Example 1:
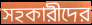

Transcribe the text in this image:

সহকারীদের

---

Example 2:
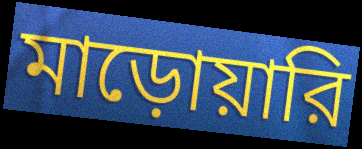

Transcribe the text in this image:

মাড়োয়ারি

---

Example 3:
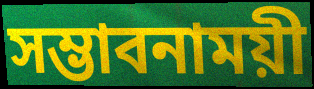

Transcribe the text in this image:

সম্ভাবনাময়ী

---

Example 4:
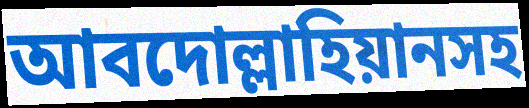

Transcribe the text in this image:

আবদোল্লাহিয়ানসহ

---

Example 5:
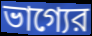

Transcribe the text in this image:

ভাগ্যের